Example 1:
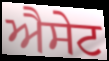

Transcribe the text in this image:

ਐਸੇਟ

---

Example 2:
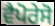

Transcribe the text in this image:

ਵੈਪੋਰੇਸੋ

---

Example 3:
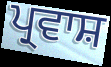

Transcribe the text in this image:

ਪ੍ਰਵਾਸ਼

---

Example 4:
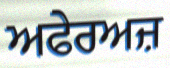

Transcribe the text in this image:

ਅਫੇਰਅਜ਼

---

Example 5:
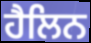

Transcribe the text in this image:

ਹੈਲਿਨ